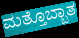
ಮತ್ತೊಬ್ಬಾತ